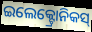
ଇଲେକ୍ଟ୍ରୋନିକସ୍